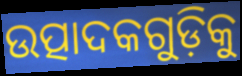
ଉତ୍ପାଦକଗୁଡ଼ିକୁ